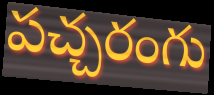
పచ్చరంగు